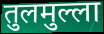
तुलमुल्ला